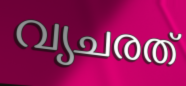
വ്യചരത്